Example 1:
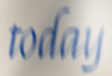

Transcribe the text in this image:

today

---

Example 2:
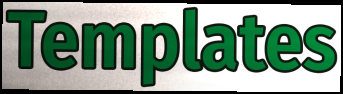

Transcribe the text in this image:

Templates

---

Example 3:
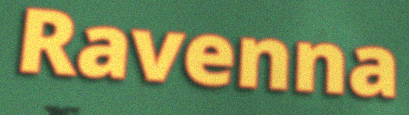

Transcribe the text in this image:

Ravenna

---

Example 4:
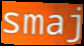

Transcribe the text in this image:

smaj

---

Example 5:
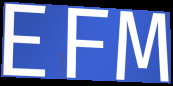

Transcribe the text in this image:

EFM